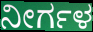
ನೀರ್ಗಳ